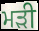
ਮੜੀ